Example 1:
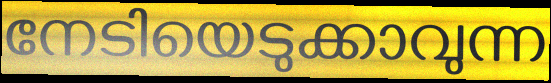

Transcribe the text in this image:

നേടിയെടുക്കാവുന്ന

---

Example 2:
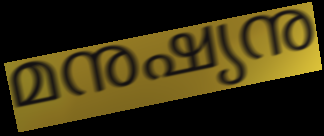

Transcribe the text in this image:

മനുഷ്യനു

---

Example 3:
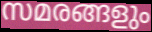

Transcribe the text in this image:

സമരങ്ങളും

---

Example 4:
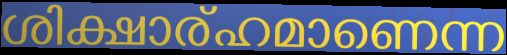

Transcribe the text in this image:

ശിക്ഷാര്ഹമാണെന്ന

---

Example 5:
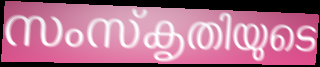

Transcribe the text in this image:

സംസ്‌കൃതിയുടെ